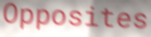
Opposites